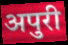
अपुरी